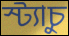
স্ট্যাচু